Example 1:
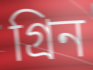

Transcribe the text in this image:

গ্রিন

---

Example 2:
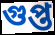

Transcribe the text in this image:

গুপ্ত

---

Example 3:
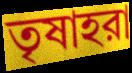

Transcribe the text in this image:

তৃষাহরা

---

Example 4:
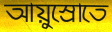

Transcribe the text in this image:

আয়ুস্রোতে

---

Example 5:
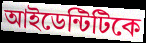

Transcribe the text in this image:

আইডেন্টিটিকে